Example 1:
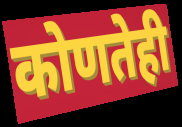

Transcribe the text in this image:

कोणतेही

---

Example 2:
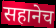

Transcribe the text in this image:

सहानेच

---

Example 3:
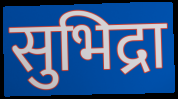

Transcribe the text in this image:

सुभिद्रा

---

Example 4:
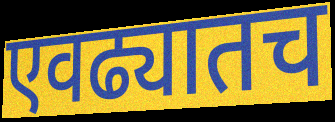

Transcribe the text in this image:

एवढ्यातच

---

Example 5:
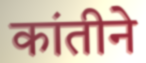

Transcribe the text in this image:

कांतीने